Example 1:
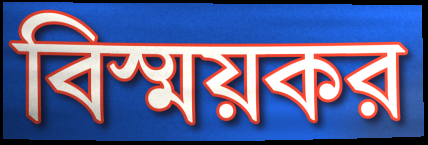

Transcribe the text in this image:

বিস্ময়কর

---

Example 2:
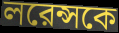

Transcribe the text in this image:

লরেন্সকে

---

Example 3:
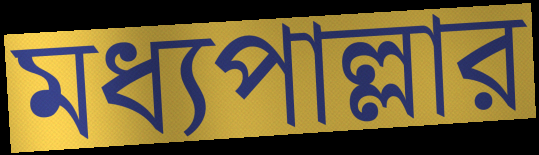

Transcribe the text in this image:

মধ্যপাল্লার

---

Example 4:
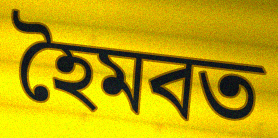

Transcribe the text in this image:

হৈমবত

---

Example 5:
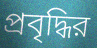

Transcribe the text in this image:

প্রবৃদ্ধির